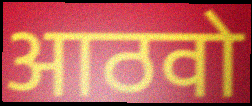
आठवो